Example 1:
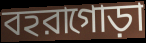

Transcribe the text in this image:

বহরাগোড়া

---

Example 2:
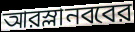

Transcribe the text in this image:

আরস্লানববের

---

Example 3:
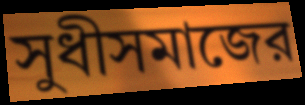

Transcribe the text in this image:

সুধীসমাজের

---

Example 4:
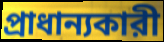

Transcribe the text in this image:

প্রাধান্যকারী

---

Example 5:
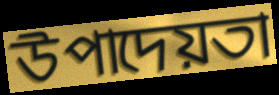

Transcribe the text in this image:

উপাদেয়তা